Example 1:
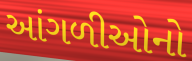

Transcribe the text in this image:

આંગળીઓનો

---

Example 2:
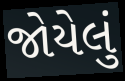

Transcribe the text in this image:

જોયેલું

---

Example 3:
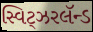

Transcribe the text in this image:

સ્વિટ્ઝરલૅન્ડ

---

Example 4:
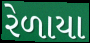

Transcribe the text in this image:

રેળાયા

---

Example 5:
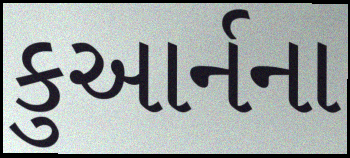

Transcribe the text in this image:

કુઆર્નના